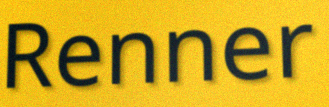
Renner